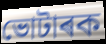
ভোটাৰক